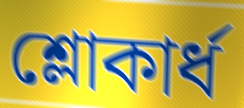
শ্লোকার্ধ